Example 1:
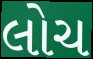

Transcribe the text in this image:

લોચ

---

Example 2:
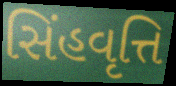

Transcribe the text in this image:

સિંહવૃત્તિ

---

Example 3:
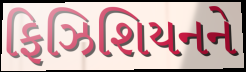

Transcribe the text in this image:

ફિઝિશિયનને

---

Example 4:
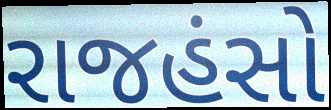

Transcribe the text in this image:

રાજહંસો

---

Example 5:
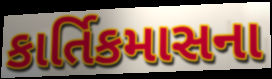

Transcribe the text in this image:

કાર્તિકમાસના